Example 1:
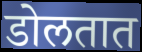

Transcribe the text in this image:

डोलतात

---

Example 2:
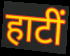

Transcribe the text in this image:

हाटीं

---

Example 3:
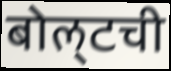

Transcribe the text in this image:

बोल्टची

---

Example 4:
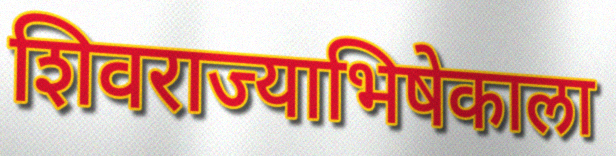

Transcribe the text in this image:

शिवराज्याभिषेकाला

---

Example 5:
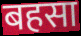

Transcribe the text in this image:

बहसा